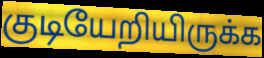
குடியேறியிருக்க